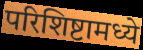
परिशिष्टामध्ये